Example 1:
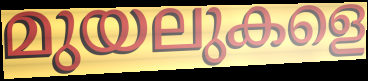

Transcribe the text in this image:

മുയലുകളെ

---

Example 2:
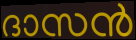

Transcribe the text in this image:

ദാസൻ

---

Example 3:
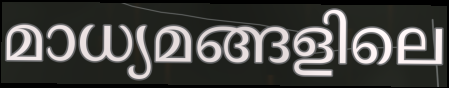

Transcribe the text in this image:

മാധ്യമങ്ങളിലെ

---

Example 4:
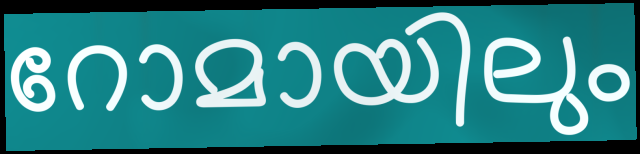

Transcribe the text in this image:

റോമായിലും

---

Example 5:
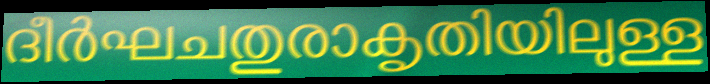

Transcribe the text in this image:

ദീർഘചതുരാകൃതിയിലുള്ള